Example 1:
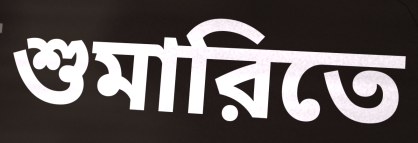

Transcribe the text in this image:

শুমারিতে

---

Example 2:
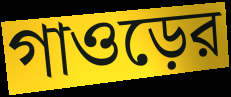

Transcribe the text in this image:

গাওড়ের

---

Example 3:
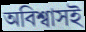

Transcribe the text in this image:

অবিশ্বাসই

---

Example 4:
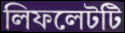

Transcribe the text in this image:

লিফলেটটি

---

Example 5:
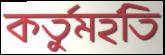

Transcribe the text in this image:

কর্তুমর্হতি